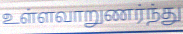
உள்ளவாறுணர்ந்து